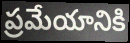
ప్రమేయానికి